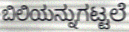
ಬಿಲಿಯನ್ನುಗಟ್ಟಲೆ